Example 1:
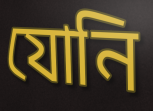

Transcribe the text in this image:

যোনি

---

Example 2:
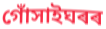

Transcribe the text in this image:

গোঁসাইঘৰৰ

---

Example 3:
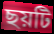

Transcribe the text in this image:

ছয়টি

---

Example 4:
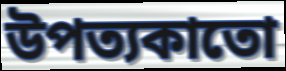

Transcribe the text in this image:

উপত্যকাতো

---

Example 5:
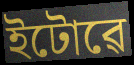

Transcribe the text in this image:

ইটোৱে